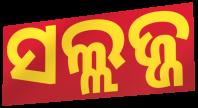
ସଲ୍ଲଜ୍ଜ